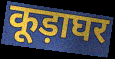
कूड़ाघर